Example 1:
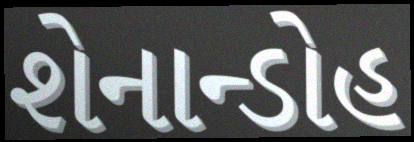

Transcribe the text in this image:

શેનાન્ડોહ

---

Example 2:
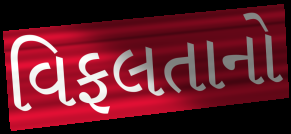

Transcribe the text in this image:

વિફલતાનો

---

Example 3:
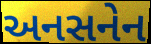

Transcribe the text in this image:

અનસનેન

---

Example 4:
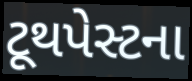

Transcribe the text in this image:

ટૂથપેસ્ટના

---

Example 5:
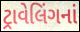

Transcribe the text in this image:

ટ્રાવેલિંગનાં